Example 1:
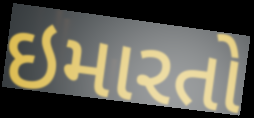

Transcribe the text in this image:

ઇમારતો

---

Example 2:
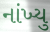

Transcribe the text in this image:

નાંખ્યુ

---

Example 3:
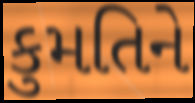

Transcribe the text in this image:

કુમતિને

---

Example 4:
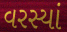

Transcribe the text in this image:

વરસ્યાં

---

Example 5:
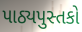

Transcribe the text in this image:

પાઠ્યપુસ્તકો